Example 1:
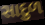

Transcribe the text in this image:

સાદુળ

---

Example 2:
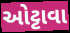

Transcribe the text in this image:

ઓટ્ટાવા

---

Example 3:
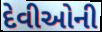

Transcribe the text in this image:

દેવીઓની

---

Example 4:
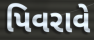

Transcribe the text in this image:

પિવરાવે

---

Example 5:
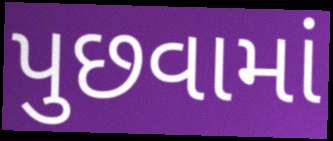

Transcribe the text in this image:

પુછવામાં